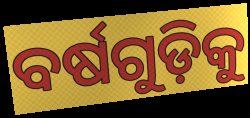
ବର୍ଷଗୁଡ଼ିକୁ